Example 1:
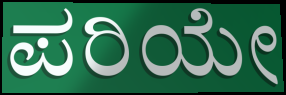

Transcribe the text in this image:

ಪರಿಯೇ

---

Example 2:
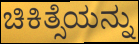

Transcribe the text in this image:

ಚಿಕಿತ್ಸೆಯನ್ನು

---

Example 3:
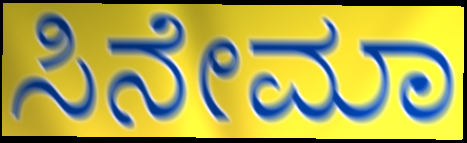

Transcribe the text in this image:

ಸಿನೇಮಾ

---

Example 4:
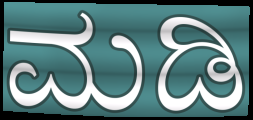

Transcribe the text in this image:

ಮಡಿ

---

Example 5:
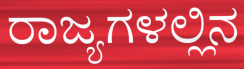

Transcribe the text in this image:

ರಾಜ್ಯಗಳಲ್ಲಿನ